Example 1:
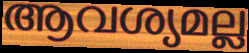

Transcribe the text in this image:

ആവശ്യമല്ല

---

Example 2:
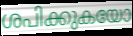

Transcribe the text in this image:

ശപിക്കുകയോ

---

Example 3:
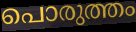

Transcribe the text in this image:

പൊരുത്തം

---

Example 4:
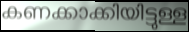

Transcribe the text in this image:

കണക്കാക്കിയിട്ടുള്ള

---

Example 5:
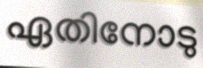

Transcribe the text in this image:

ഏതിനോടു